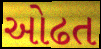
ઓઢત